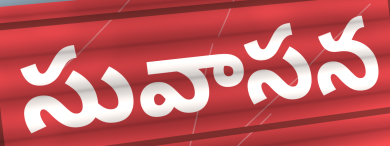
సువాసన